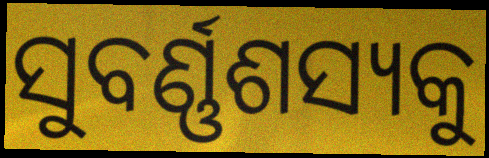
ସୁବର୍ଣ୍ଣଶସ୍ୟକୁ